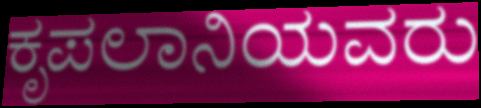
ಕೃಪಲಾನಿಯವರು